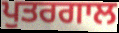
ਪੁਤਰਗਾਲ